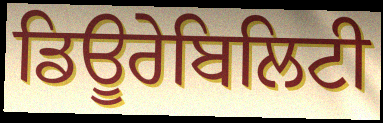
ਡਿਊਰੇਬਿਲਿਟੀ